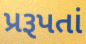
પ્રરૂપતાં